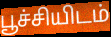
பூச்சியிடம்